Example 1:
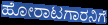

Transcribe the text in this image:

ಹೋರಾಟಗಾರನಿಗೆ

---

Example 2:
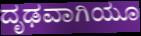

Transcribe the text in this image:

ದೃಢವಾಗಿಯೂ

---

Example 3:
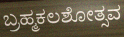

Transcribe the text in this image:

ಬ್ರಹ್ಮಕಲಶೋತ್ಸವ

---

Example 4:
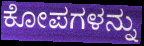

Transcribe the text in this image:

ಕೋಪಗಳನ್ನು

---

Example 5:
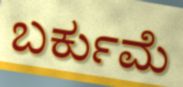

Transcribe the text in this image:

ಬರ್ಕುಮೆ